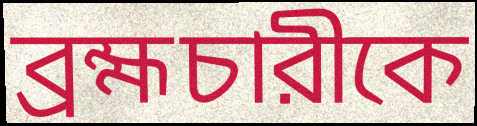
ব্রহ্মচারীকে